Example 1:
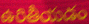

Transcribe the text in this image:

ఉరితీయడం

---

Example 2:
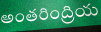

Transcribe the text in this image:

అంతరింద్రియ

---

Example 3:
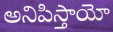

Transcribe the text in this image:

అనిపిస్తాయో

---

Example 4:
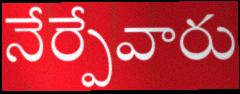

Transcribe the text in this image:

నేర్పేవారు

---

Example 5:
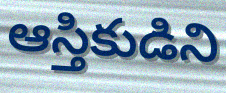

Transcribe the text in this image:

ఆస్తికుడిని